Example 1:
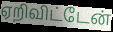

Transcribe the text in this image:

ஏறிவிட்டேன்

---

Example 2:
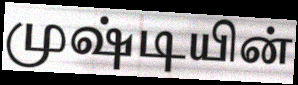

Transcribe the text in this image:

முஷ்டியின்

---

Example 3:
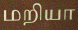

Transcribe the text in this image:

மறியா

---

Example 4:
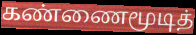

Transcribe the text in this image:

கண்ணைமூடித்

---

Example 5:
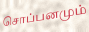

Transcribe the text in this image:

சொப்பனமும்